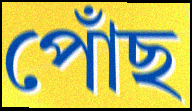
পোঁছ